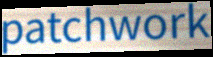
patchwork